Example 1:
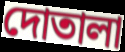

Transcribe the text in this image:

দোতালা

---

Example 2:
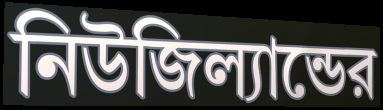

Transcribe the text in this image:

নিউজিল্যান্ডের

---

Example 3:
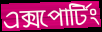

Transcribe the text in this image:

এক্সপোর্টিং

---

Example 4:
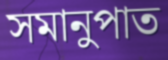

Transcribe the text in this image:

সমানুপাত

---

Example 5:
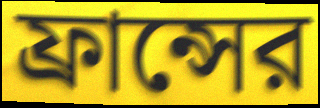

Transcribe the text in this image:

ফ্রান্সের